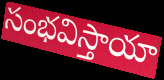
సంభవిస్తాయా